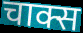
चाक्स